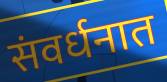
संवर्धनात